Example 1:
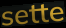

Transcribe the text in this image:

sette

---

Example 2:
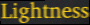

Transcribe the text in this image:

Lightness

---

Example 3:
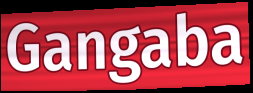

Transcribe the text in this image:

Gangaba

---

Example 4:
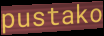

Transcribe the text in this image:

pustako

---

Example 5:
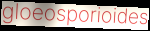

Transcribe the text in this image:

gloeosporioides